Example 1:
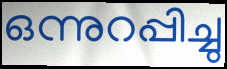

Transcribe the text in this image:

ഒന്നുറപ്പിച്ചു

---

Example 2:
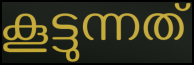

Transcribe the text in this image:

കൂട്ടുന്നത്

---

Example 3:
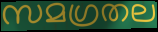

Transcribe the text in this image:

സമഗ്രതല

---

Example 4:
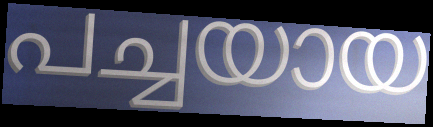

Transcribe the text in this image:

പച്ചയായ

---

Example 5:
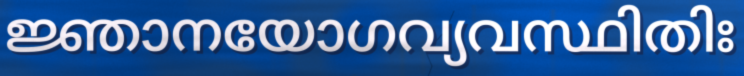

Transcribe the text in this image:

ജ്ഞാനയോഗവ്യവസ്ഥിതിഃ